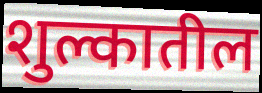
शुल्कातील